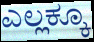
ಎಲ್ಲಕ್ಕೂ